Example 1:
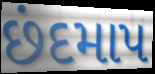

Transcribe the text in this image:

છંદમાપ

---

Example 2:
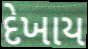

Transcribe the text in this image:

દેખાય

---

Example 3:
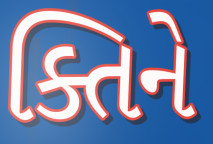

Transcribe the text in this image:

ક્તિને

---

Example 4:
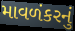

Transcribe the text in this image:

માવળંકરનું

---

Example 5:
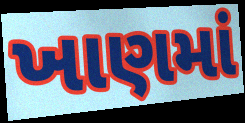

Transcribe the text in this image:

ખાણમાં